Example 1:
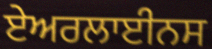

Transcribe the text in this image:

ਏਅਰਲਾਈਨਸ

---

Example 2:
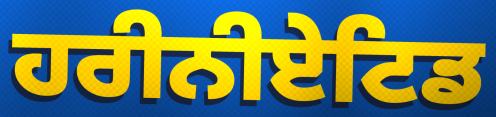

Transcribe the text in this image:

ਹਰੀਨੀਏਟਿਡ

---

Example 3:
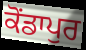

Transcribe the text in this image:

ਕੋਂਡਾਪੁਰ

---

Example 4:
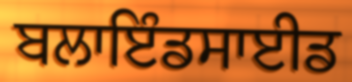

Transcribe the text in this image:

ਬਲਾਇੰਡਸਾਈਡ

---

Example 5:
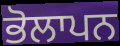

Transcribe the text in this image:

ਭੋਲਾਪਨ